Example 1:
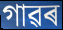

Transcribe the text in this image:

গাৱৰ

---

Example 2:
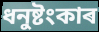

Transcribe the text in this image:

ধনুষ্টংকাৰ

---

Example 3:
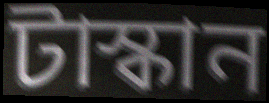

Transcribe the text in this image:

টাস্কান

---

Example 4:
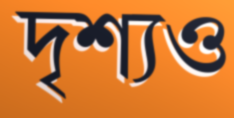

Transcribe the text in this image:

দৃশ্যও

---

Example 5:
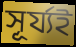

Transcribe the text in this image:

সূৰ্য্যই